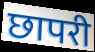
छापरी